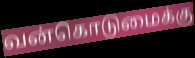
வன்கொடுமைக்கு